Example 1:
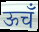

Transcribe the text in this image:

ऊचँ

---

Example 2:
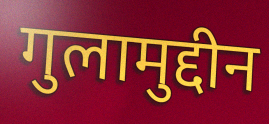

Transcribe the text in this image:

गुलामुद्दीन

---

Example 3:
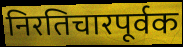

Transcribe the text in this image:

निरतिचारपूर्वक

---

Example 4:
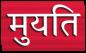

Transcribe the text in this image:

मुयति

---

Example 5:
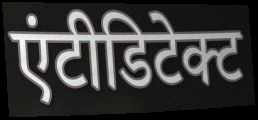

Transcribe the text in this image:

एंटीडिटेक्ट